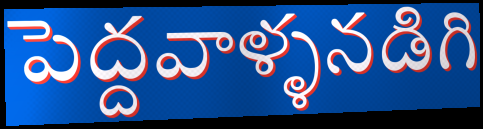
పెద్దవాళ్ళనడిగి